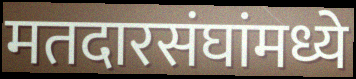
मतदारसंघांमध्ये